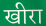
खीरा